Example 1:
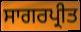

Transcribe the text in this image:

ਸਾਗਰਪ੍ਰੀਤ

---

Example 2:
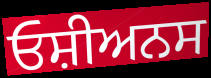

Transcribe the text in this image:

ਓਸ਼ੀਅਨਸ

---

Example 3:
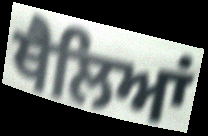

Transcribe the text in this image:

ਥੈਲਿਆਂ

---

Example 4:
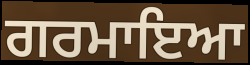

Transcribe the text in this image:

ਗਰਮਾਇਆ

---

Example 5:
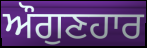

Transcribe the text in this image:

ਔਗੁਣਹਾਰ